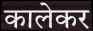
कालेकर